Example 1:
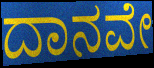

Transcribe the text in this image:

ದಾನವೇ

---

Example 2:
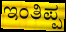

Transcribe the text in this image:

ಇಂತಿಪ್ಪ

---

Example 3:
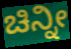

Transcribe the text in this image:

ಚಿನ್ನೀ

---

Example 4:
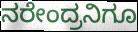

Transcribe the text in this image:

ನರೇಂದ್ರನಿಗೂ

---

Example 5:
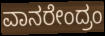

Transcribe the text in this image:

ವಾನರೇಂದ್ರಂ